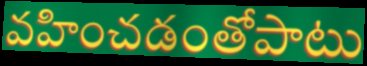
వహించడంతోపాటు